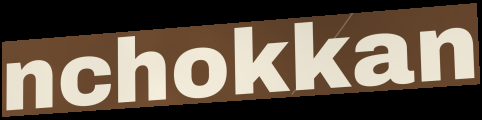
nchokkan